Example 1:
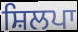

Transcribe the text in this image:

ਸ਼ਿਲਪਾ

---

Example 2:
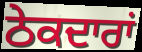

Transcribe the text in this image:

ਠੇਕਦਾਰਾਂ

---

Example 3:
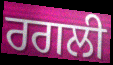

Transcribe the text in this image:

ਰਗਲੀ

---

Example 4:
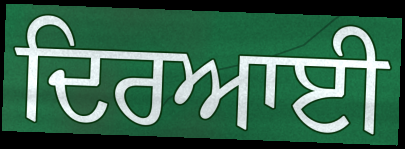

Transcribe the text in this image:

ਦਿਰਆਈ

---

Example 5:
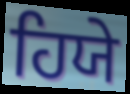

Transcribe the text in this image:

ਹਿਯੇ